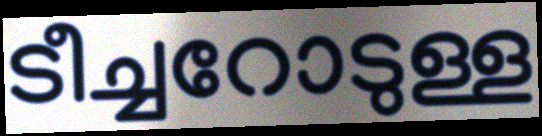
ടീച്ചറോടുള്ള